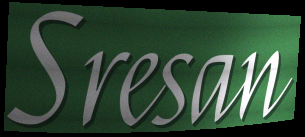
Sresan